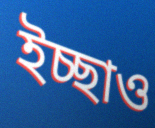
ইচ্ছাও